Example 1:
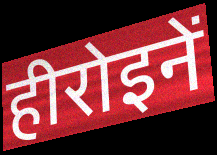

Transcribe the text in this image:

हीरोइनें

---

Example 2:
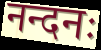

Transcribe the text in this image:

नन्दनः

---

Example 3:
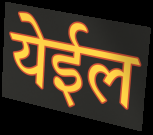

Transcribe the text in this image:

येईल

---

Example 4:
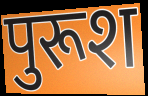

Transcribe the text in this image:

पुरूश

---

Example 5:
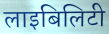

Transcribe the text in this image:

लाइबिलिटी